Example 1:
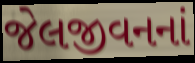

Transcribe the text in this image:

જેલજીવનનાં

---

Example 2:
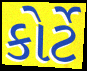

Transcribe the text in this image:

કોર્ટે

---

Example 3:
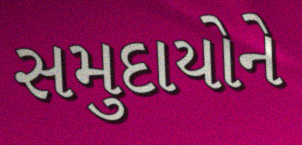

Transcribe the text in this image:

સમુદાયોને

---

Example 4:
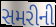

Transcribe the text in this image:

સમરીની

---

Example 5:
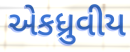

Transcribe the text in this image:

એકધ્રુવીય